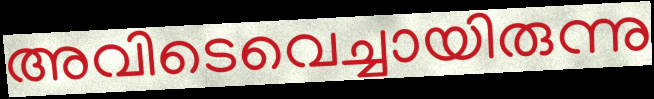
അവിടെവെച്ചായിരുന്നു